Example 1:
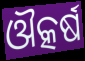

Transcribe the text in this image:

ଔତ୍କର୍ଷ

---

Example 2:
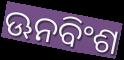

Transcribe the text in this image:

ଊନବିଂଶ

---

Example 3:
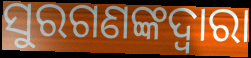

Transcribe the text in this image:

ସୁରଗଣଙ୍କଦ୍ୱାରା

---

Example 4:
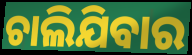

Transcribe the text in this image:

ଚାଲିଯିବାର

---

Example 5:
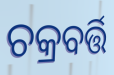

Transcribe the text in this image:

ଚକ୍ରବର୍ତ୍ତି